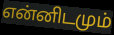
என்னிடமும்